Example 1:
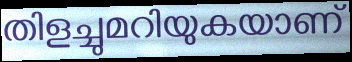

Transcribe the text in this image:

തിളച്ചുമറിയുകയാണ്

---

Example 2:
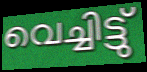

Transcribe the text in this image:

വെച്ചിട്ടു്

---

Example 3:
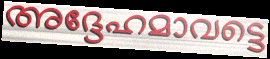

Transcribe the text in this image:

അദ്ദേഹമാവട്ടെ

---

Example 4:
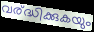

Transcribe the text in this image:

വര്ദ്ധിക്കുകയും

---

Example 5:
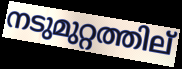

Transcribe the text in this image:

നടുമുറ്റത്തില്